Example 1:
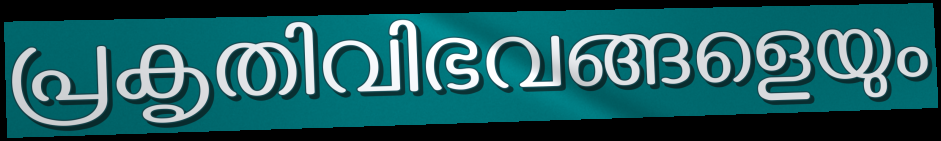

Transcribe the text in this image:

പ്രകൃതിവിഭവങ്ങളെയും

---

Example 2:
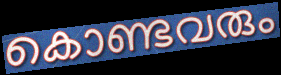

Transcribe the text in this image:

കൊണ്ടവരും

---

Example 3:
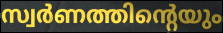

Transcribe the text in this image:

സ്വർണത്തിന്റെയും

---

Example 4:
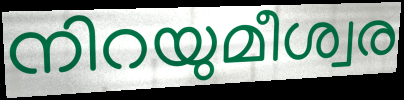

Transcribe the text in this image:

നിറയുമീശ്വര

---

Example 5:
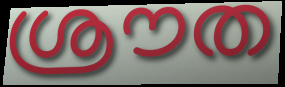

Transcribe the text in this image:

ശ്രൗത